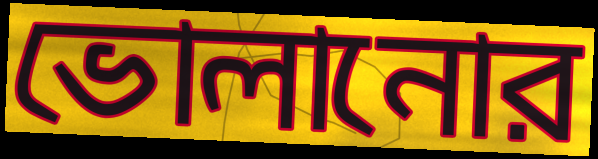
ভোলানোর